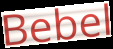
Bebel